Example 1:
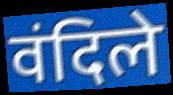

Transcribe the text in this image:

वंदिले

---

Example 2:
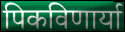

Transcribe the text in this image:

पिकविणार्या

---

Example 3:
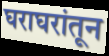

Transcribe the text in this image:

घराघरांतून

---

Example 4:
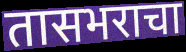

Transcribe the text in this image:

तासभराचा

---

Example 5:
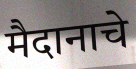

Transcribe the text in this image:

मैदानाचे